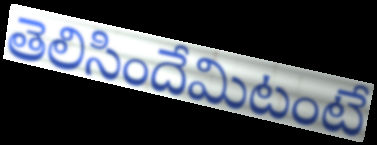
తెలిసిందేమిటంటే